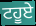
ਟਹੂਏ